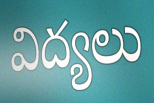
విద్యలు